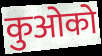
कुओको